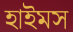
হাইমস